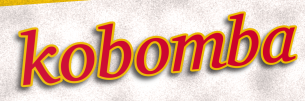
kobomba